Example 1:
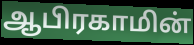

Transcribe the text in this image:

ஆபிரகாமின்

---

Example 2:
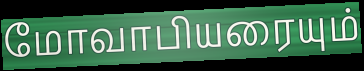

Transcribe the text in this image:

மோவாபியரையும்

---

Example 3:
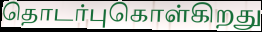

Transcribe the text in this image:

தொடர்புகொள்கிறது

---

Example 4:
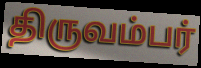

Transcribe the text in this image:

திருவம்பர்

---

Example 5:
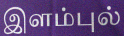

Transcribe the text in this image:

இளம்புல்